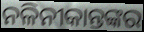
ନଳିନୀକାନ୍ତଙ୍କର